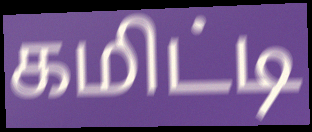
கமிட்டி